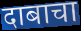
दाबाचा